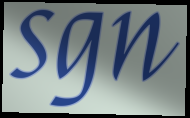
sgn